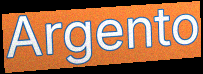
Argento